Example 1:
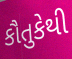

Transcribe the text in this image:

કૌતુકેથી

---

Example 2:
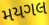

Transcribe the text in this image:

મયગલ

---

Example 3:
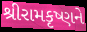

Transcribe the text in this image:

શ્રીરામકૃષ્ણને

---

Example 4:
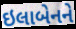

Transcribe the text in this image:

ઇલાબેનને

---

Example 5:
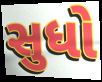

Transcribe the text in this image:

સુધો